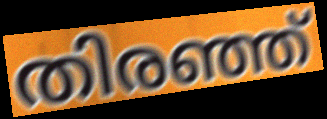
തിരഞ്ഞ്